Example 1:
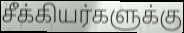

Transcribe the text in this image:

சீக்கியர்களுக்கு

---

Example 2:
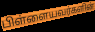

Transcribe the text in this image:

பிள்ளையவர்களின்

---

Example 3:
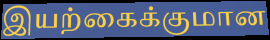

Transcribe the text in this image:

இயற்கைக்குமான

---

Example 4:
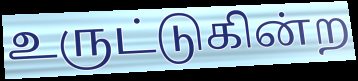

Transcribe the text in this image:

உருட்டுகின்ற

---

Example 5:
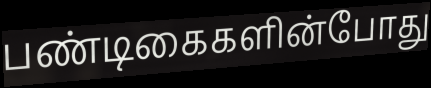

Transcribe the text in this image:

பண்டிகைகளின்போது